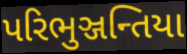
પરિભુઞ્જન્તિયા